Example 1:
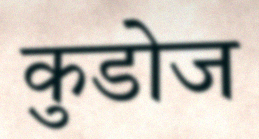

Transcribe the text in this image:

कुडोज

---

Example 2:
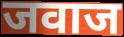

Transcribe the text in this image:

जवाज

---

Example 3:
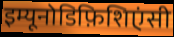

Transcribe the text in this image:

इम्यूनोडिफ़िशिएंसी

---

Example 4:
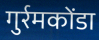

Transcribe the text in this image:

गुर्रमकोंडा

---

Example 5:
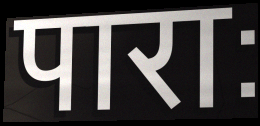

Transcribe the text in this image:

पाराः